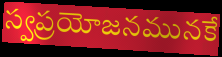
స్వప్రయోజనమునకే